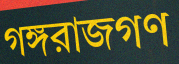
গঙ্গরাজগণ